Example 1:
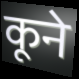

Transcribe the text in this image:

कूने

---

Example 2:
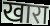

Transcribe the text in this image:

खारा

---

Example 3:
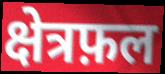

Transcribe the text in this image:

क्षेत्रफ़ल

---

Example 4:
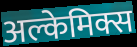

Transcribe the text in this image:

अल्केमिक्स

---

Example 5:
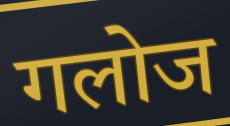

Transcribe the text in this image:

गलोज